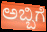
ಅಬ್ಬಿಗೆ